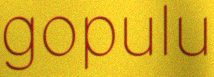
gopulu